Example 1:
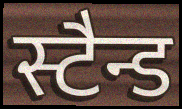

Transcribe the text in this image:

स्टैन्ड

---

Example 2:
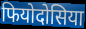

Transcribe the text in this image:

फियोदोसिया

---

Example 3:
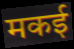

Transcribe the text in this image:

मकई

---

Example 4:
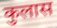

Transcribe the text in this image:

कुलास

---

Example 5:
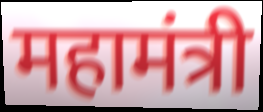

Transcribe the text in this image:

महामंत्री